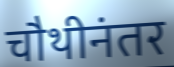
चौथीनंतर